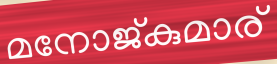
മനോജ്കുമാര്